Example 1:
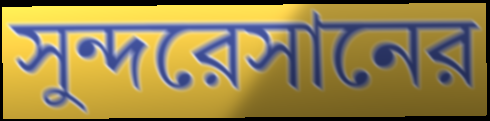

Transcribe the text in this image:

সুন্দরেসানের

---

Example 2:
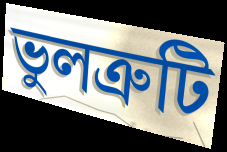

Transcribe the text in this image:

ভুলত্রুটি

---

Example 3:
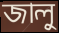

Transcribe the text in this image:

জালু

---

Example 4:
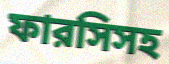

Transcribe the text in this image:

ফারসিসহ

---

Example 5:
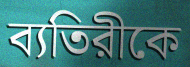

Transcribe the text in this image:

ব্যতিরীকে